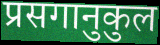
प्रसगानुकुल